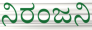
ನಿರಂಜನಿ